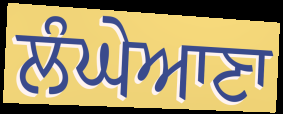
ਲੰਘੇਆਣਾ